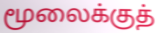
மூலைக்குத்